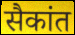
सैकांत